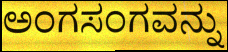
ಅಂಗಸಂಗವನ್ನು